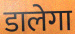
डालेगा